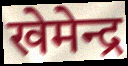
खेमेन्द्र